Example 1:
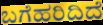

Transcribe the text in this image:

ಬಗೆಹರಿದಿದೆ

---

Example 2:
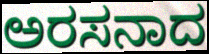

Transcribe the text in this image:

ಅರಸನಾದ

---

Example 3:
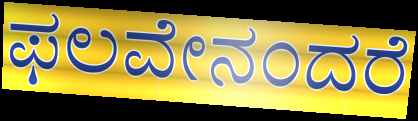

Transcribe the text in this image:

ಫಲವೇನಂದರೆ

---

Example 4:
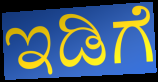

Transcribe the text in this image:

ಇಡಿಗೆ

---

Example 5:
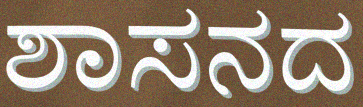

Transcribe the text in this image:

ಶಾಸನದ